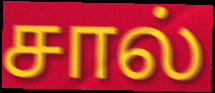
சால்